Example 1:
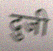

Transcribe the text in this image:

दुजी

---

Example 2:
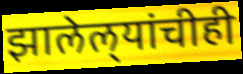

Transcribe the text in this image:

झालेल्यांचीही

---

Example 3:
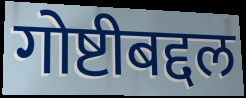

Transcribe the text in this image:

गोष्टीबद्दल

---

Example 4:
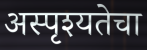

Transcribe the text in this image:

अस्पृश्यतेचा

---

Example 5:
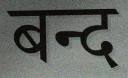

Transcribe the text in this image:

बन्द